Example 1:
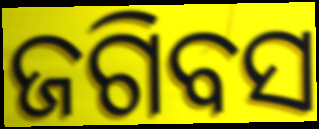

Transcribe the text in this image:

ଜଗିବସ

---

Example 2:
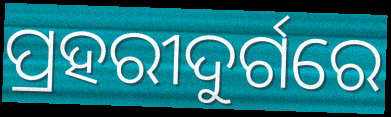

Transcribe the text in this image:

ପ୍ରହରୀଦୁର୍ଗରେ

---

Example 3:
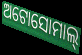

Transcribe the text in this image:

ଅଟୋସୋମାଲ୍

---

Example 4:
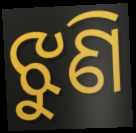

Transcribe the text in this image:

ଝୁଣି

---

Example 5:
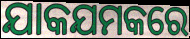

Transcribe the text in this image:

ଯାକଯମକରେ